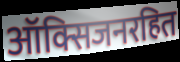
ऑक्सिजनरहित